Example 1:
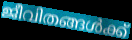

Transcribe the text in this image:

ജീവിതങ്ങൾക്ക്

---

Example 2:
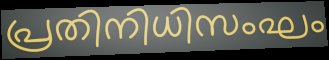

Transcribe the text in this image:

പ്രതിനിധിസംഘം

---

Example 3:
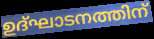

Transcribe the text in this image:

ഉദ്ഘാടനത്തിന്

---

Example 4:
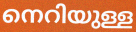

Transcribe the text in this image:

നെറിയുള്ള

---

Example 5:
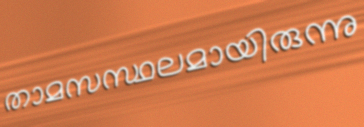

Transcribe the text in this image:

താമസസ്ഥലമായിരുന്നു